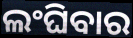
ଲଂଘିବାର